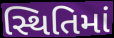
સ્થિતિમાં